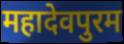
महादेवपुरम